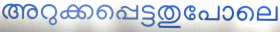
അറുക്കപ്പെട്ടതുപോലെ